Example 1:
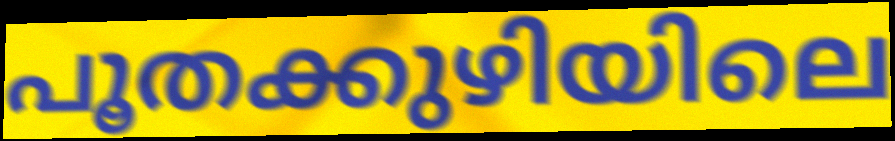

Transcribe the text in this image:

പൂതക്കുഴിയിലെ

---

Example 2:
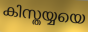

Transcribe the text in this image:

കിസ്തയ്യയെ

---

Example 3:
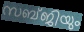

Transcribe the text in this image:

സബ്ജിയും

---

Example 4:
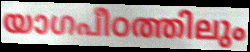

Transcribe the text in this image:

യാഗപീഠത്തിലും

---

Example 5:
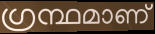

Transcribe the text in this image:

ഗ്രന്ഥമാണ്